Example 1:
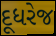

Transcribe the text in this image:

દૂધરેજ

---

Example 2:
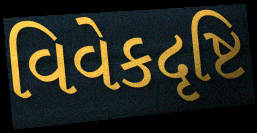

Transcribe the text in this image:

વિવેકદૃષ્ટિ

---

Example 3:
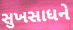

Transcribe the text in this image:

સુખસાધને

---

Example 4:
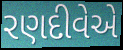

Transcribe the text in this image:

રણદીવેએ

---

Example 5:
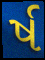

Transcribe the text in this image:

ર્ષ